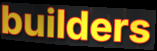
builders